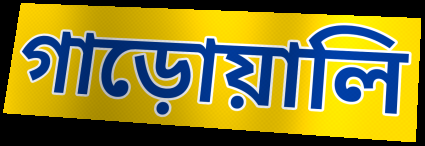
গাড়োয়ালি